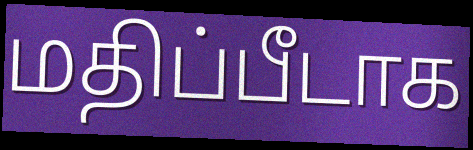
மதிப்பீடாக